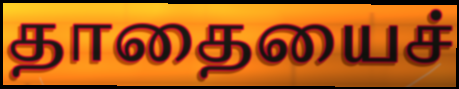
தாதையைச்